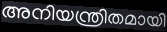
അനിയന്ത്രിതമായി